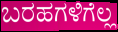
ಬರಹಗಳಿಗೆಲ್ಲ